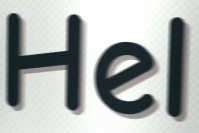
Hel